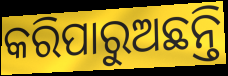
କରିପାରୁଅଛନ୍ତି